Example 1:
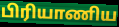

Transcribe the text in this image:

பிரியாணிய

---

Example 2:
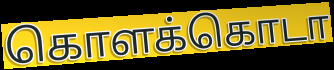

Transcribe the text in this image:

கொளக்கொடா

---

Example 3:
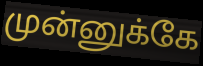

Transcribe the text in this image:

முன்னுக்கே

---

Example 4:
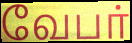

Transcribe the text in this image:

வேபர்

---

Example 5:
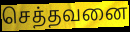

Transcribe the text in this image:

செத்தவனை